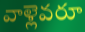
వాళ్లెవరూ